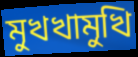
মুখখামুখি